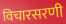
विचारसरणी